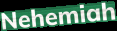
Nehemiah